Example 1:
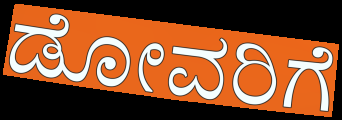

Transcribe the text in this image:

ಡೋವರಿಗೆ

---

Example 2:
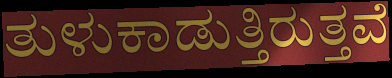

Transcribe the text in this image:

ತುಳುಕಾಡುತ್ತಿರುತ್ತವೆ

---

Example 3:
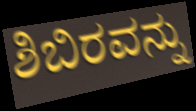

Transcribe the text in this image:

ಶಿಬಿರವನ್ನು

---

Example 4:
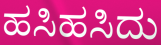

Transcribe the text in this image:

ಹಸಿಹಸಿದು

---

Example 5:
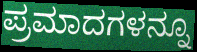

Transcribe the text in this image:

ಪ್ರಮಾದಗಳನ್ನೂ